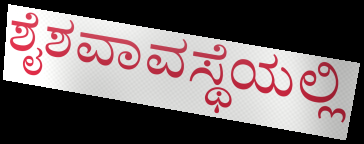
ಶೈಶವಾವಸ್ಥೆಯಲ್ಲಿ